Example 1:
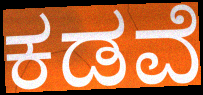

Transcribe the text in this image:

ಕಡವೆ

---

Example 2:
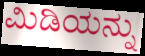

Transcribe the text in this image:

ಮಿಡಿಯನ್ನು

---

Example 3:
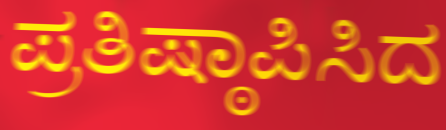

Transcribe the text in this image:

ಪ್ರತಿಷ್ಠಾಪಿಸಿದ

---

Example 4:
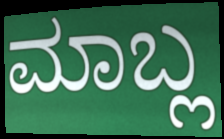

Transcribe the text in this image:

ಮಾಬ್ಲ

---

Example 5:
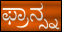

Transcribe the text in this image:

ಫ್ರಾನ್ಸ್ನ